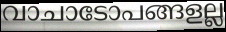
വാചാടോപങ്ങളല്ല